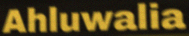
Ahluwalia